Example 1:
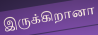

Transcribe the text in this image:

இருக்கிறானா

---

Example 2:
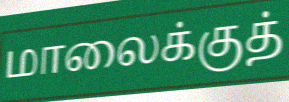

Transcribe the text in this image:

மாலைக்குத்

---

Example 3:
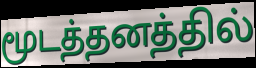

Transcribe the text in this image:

மூடத்தனத்தில்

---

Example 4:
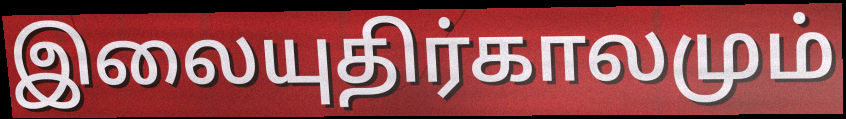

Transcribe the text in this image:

இலையுதிர்காலமும்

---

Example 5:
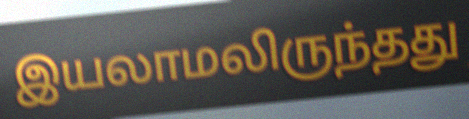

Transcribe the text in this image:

இயலாமலிருந்தது